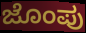
ಜೊಂಪು